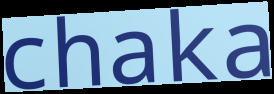
chaka